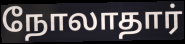
நோலாதார்